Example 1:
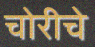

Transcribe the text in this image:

चोरीचे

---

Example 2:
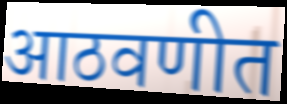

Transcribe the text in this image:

आठवणीत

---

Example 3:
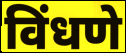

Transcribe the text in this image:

विंधणे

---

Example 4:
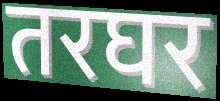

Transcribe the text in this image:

तरघर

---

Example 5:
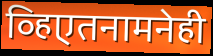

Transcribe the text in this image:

व्हिएतनामनेही